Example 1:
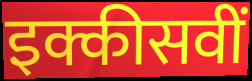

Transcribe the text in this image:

इक्कीसवीं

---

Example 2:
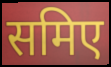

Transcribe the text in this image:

समिए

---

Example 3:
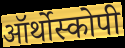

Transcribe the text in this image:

ऑर्थोस्कोपी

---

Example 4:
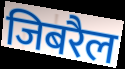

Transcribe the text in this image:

जिबरैल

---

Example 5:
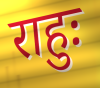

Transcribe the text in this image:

राहुः